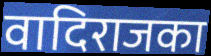
वादिराजका